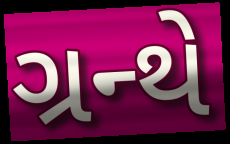
ગ્રન્થે